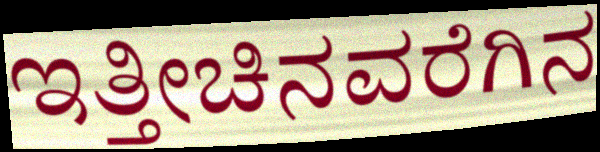
ಇತ್ತೀಚಿನವರೆಗಿನ